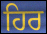
ਹਿਰ